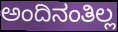
ಅಂದಿನಂತಿಲ್ಲ